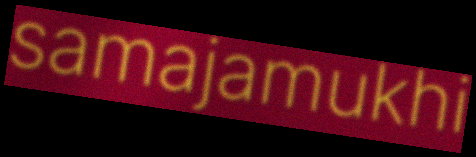
samajamukhi